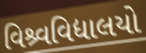
વિશ્ર્વવિદ્યાલયો